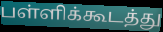
பள்ளிக்கூடத்து